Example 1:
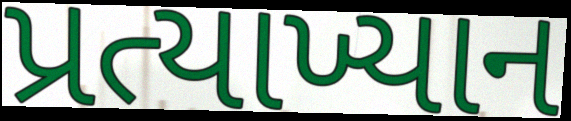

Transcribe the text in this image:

પ્રત્યાખ્યાન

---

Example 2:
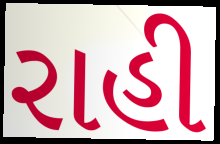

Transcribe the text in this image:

રાહી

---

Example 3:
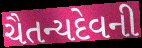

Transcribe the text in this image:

ચૈતન્યદેવની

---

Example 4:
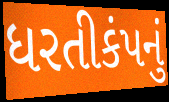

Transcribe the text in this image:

ધરતીકંપનું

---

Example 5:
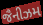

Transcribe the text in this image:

જૈનીઝમ